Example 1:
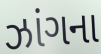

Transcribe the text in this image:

ઝાંગના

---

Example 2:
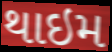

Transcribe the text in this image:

થાઇમ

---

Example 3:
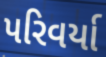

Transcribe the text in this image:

પરિવર્યા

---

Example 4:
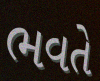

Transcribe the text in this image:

ભવતે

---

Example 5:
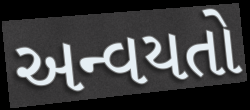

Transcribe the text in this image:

અન્વયતો